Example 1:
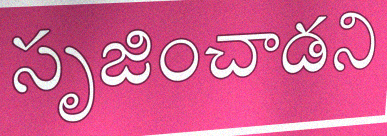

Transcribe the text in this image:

సృజించాడని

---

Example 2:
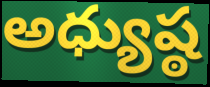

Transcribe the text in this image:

అధ్యుష్ఠ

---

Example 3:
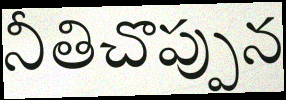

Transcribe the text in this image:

నీతిచొప్పున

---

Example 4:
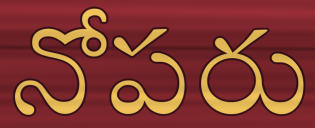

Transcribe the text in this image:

నోపరు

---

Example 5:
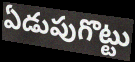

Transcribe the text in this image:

ఏడుపుగొట్టు